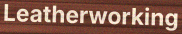
Leatherworking